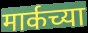
मार्कच्या